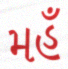
મહઁ